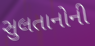
સુલતાનોની